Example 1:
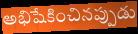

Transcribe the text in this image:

అభిషేకించినప్పుడు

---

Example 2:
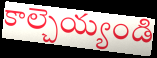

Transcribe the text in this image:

కాల్చెయ్యండి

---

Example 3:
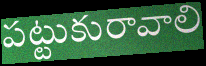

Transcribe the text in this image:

పట్టుకురావాలి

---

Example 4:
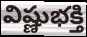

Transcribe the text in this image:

విష్ణుభక్తి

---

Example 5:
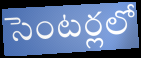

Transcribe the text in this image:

సెంటర్లలో